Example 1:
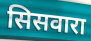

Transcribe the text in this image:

सिसवारा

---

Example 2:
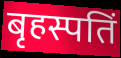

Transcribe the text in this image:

बृहस्पतिं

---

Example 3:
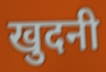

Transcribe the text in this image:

खुदनी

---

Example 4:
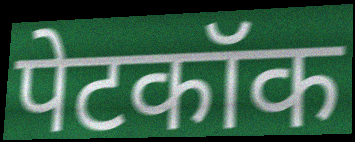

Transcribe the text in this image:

पेटकॉक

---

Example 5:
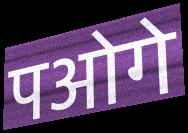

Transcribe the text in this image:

पओगे